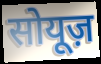
सोयूज़